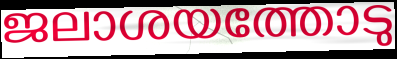
ജലാശയത്തോടു